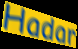
Hadar